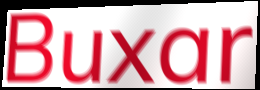
Buxar